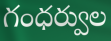
గంధర్వుల